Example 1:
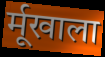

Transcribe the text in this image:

र्मूखाला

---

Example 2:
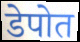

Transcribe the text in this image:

डेपोत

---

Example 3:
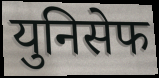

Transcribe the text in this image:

युनिसेफ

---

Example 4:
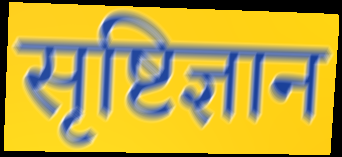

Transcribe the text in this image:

सृष्टिज्ञान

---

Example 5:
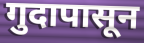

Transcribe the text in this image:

गुदापासून